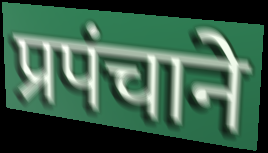
प्रपंचाने